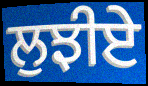
ਲੁਝੀਏ